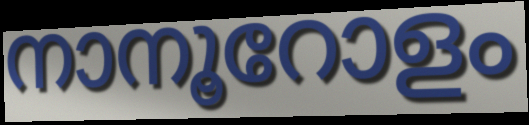
നാനൂറോളം